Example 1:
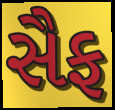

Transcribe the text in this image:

સૈફ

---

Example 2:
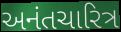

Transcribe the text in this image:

અનંતચારિત્ર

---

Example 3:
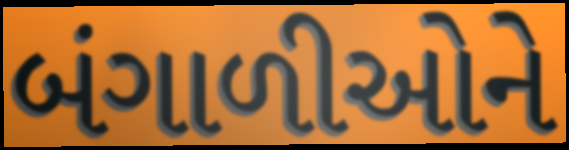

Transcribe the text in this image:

બંગાળીઓને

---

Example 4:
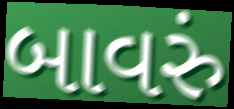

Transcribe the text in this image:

બાવરું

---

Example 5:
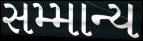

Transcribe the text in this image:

સમ્માન્ય